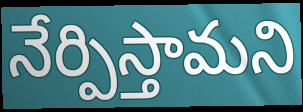
నేర్పిస్తామని